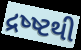
દ્રષ્ષ્ટથી